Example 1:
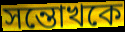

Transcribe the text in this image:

সন্তোখকে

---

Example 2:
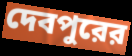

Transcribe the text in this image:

দেবপুরের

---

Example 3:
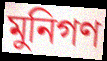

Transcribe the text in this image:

মুনিগণ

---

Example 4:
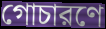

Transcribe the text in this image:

গোচারণে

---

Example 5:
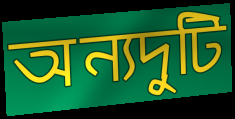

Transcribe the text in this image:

অন্যদুটি